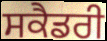
ਸਕੈਡਰੀ